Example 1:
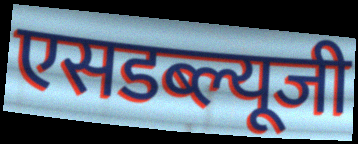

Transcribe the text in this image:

एसडब्ल्यूजी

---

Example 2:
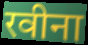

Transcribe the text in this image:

रवीना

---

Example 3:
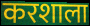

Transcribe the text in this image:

करशाला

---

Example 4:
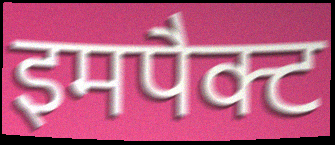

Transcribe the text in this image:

इमपैक्ट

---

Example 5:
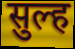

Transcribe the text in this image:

सुल्ह